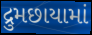
દ્રુમછાયામાં